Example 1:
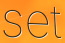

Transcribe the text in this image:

set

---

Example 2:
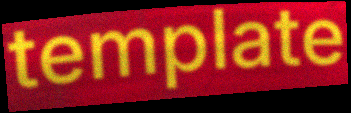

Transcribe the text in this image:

template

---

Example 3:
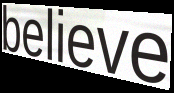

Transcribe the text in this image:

believe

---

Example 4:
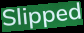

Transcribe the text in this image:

Slipped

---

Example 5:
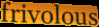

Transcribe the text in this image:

frivolous